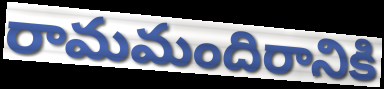
రామమందిరానికి